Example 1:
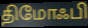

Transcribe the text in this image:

திமோஃபி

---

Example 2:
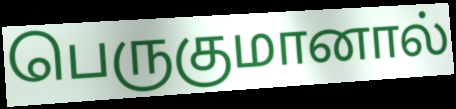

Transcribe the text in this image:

பெருகுமானால்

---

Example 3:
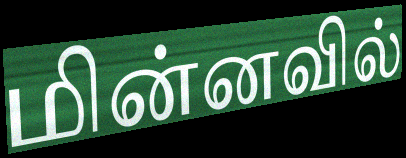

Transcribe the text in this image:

மின்னவில்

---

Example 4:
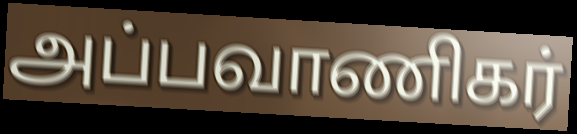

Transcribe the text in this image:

அப்பவாணிகர்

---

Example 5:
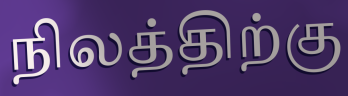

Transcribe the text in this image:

நிலத்திற்கு